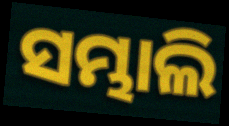
ସମ୍ଭାଲି